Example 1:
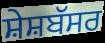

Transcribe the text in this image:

ਸ਼ੇਸ਼ਬੱਸਰ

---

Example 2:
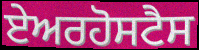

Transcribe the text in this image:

ਏਅਰਹੋਸਟੈਸ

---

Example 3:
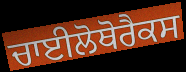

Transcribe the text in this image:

ਚਾਈਲੋਥੋਰੈਕਸ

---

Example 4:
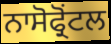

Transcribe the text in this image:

ਨਾਸੋਫ੍ਰੋਂਟਲ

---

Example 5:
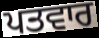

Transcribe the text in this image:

ਪਤਵਾਰ